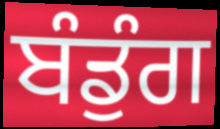
ਬੰਡੁੰਗ